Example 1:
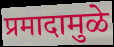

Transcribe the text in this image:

प्रमादामुळे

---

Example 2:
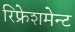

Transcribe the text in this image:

रिफ्रेशमेन्ट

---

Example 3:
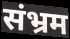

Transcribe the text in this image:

संभ्रम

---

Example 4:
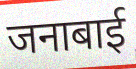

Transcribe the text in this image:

जनाबाई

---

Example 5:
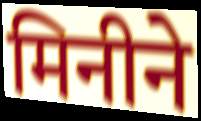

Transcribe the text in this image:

मिनीने